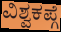
ವಿಶ್ವಕಪ್ಗೆ